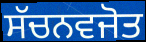
ਸੱਚਨਵਜੋਤ